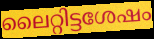
ലൈറ്റിട്ടശേഷം